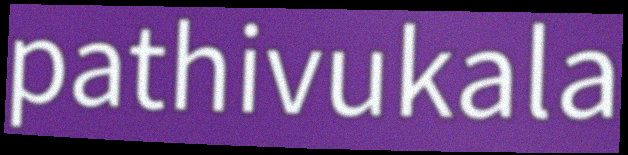
pathivukala